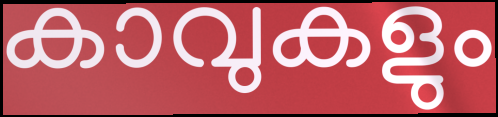
കാവുകളും